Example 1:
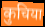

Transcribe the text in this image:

कुचिया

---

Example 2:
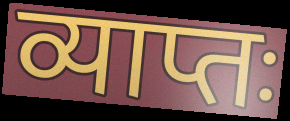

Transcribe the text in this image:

व्याप्तः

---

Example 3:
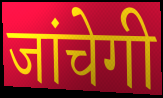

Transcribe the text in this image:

जांचेगी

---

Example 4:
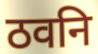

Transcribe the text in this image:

ठवनि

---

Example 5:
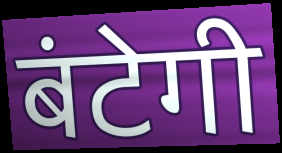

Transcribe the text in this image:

बंटेगी